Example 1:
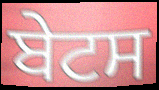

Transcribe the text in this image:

ਬੇਟਸ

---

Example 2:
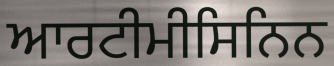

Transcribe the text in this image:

ਆਰਟੀਮੀਸਿਨਿਨ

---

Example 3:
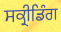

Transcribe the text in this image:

ਸਕ੍ਰੀਡਿੰਗ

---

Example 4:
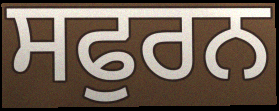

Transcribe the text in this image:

ਸਫੁਰਨ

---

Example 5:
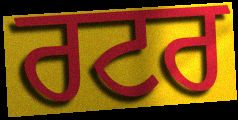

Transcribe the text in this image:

ਰਟਰ